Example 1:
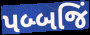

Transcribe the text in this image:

પબ્બજિં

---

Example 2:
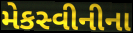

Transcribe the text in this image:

મેકસ્વીનીના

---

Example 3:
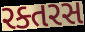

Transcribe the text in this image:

રક્તરસ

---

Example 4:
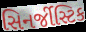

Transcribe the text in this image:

સિનર્જીસ્ટિક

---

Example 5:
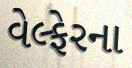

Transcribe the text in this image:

વેલ્ફેરના